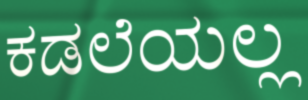
ಕಡಲೆಯಲ್ಲ